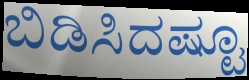
ಬಿಡಿಸಿದಷ್ಟೂ